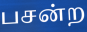
பசன்ற